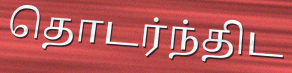
தொடர்ந்திட